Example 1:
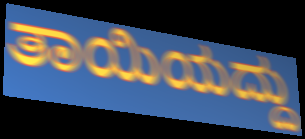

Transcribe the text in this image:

ತಾಯಿಯದ್ದು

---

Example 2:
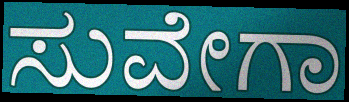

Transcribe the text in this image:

ಸುವೇಗಾ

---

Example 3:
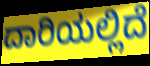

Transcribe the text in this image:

ದಾರಿಯಲ್ಲಿದೆ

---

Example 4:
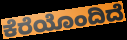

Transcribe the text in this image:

ಕೆರೆಯೊಂದಿದೆ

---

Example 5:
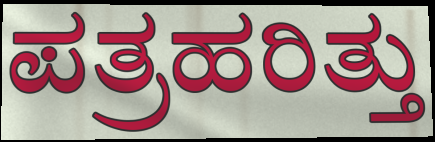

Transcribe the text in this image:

ಪತ್ರಹರಿತ್ತು